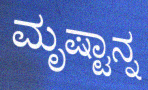
ಮೃಷ್ಟಾನ್ನ